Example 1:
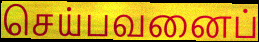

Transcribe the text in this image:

செய்பவனைப்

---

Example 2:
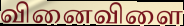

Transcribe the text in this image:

வினைவிளை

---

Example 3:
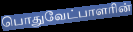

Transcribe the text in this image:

பொதுவேட்பாளரின்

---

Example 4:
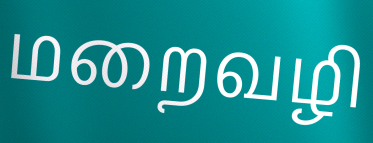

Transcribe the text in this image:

மறைவழி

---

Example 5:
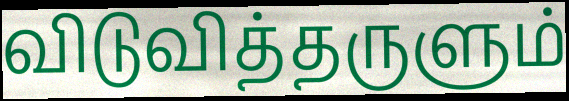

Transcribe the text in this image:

விடுவித்தருளும்